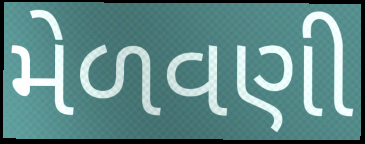
મેળવણી